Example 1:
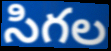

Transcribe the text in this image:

సిగల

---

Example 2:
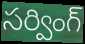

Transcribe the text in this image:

సర్వింగ్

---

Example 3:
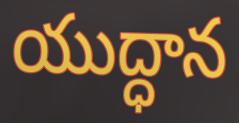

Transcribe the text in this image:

యుద్ధాన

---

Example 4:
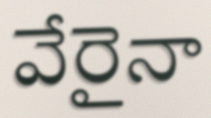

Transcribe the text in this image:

వేరైనా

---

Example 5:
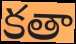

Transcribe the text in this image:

కతా